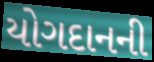
યોગદાનની